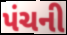
પંચની